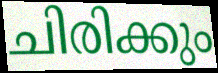
ചിരിക്കും